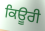
ਕਿਊਰੀ